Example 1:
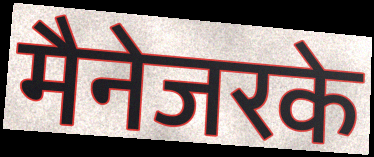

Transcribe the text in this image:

मैनेजरके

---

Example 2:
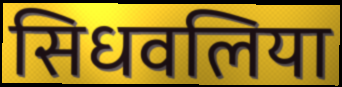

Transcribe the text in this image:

सिधवलिया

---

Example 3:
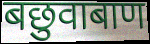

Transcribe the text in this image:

बछुवाबाण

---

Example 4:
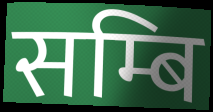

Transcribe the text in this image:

सम्बि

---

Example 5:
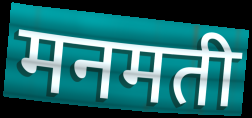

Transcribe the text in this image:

मनमती